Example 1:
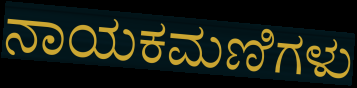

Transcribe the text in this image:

ನಾಯಕಮಣಿಗಳು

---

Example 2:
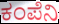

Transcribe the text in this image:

ಕಂಪೆನಿ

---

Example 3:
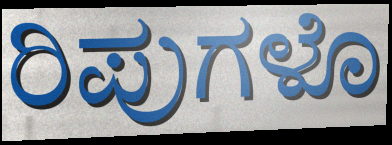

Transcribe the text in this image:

ರಿಪುಗಳೊ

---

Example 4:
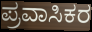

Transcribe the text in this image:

ಪ್ರವಾಸಿಕರ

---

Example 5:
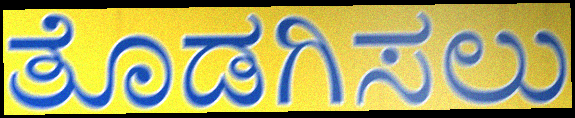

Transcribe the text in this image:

ತೊಡಗಿಸಲು